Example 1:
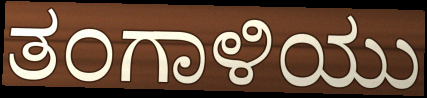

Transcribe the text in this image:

ತಂಗಾಳಿಯು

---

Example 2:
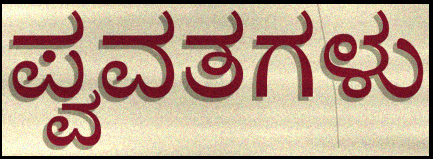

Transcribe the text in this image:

ಪ್ವವತಗಳು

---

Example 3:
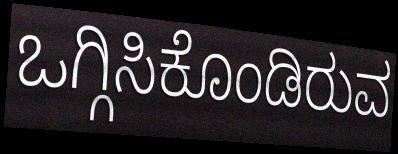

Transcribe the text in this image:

ಒಗ್ಗಿಸಿಕೊಂಡಿರುವ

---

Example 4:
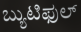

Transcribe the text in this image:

ಬ್ಯುಟಿಫುಲ್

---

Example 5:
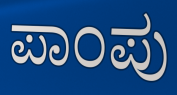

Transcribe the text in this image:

ಪಾಂಪು